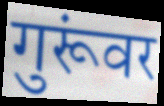
गुरूंवर